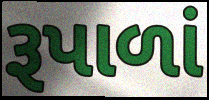
રૂપાળાં